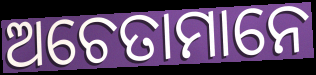
ଅଚେତାମାନେ